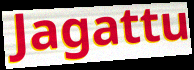
Jagattu